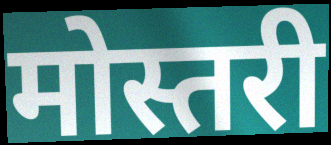
मोस्तरी